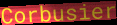
Corbusier